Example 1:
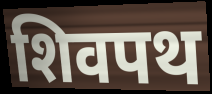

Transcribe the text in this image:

शिवपथ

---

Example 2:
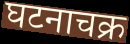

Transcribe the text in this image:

घटनाचक्र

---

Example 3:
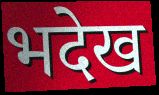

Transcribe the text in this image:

भदेख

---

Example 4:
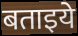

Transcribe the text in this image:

बताइये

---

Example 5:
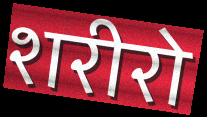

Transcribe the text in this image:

शरीरो